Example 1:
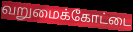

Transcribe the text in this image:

வறுமைக்கோட்டை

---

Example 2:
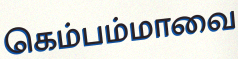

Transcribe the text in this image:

கெம்பம்மாவை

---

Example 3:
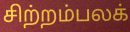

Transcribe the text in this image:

சிற்றம்பலக்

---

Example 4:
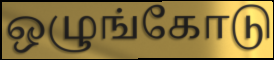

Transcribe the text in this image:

ஒழுங்கோடு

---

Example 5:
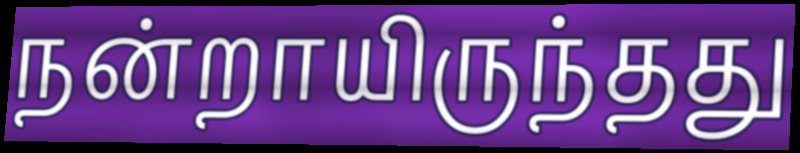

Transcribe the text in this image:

நன்றாயிருந்தது